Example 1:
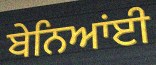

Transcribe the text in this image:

ਬੇਨਿਆਂਈ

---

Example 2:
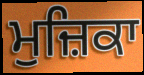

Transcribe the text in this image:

ਮੁਜ਼ਿਕਾ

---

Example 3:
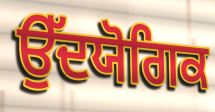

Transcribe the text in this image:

ਉੱਦਯੋਗਿਕ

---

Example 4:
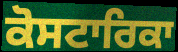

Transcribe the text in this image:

ਕੋਸਟਾਰਿਕਾ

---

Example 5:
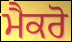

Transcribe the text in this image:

ਮੈਕਰੋ